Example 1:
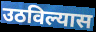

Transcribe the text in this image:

उठविल्यास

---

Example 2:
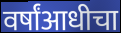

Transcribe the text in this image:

वर्षांआधीचा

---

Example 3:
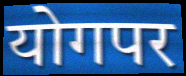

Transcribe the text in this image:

योगपर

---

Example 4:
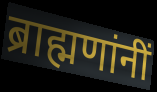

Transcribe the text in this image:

ब्राह्मणांनीं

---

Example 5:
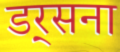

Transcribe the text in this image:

डर्सना